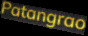
Patangrao